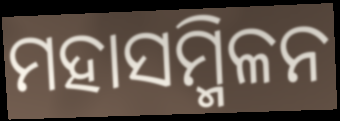
ମହାସମ୍ମିଳନ